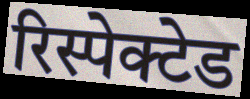
रिस्पेक्टेड